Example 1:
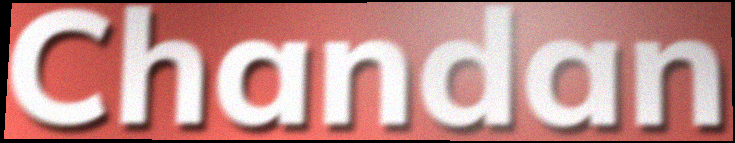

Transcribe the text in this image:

Chandan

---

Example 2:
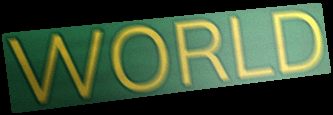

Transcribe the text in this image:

WORLD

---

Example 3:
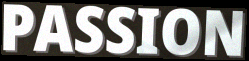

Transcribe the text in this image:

PASSION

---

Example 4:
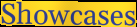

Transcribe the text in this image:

Showcases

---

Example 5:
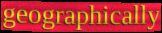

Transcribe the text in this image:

geographically